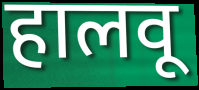
हालवू